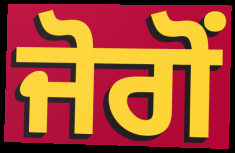
ਜੋਗੋਂ